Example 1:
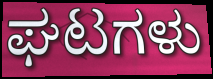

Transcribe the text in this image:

ಘಟಗಳು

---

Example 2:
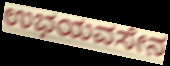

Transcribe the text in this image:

ಉಭಯವಸೇನ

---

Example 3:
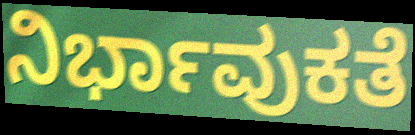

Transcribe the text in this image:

ನಿರ್ಭಾವುಕತೆ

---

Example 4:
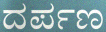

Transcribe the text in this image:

ದರ್ಪಣ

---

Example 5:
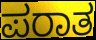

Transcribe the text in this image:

ಪರಾತ